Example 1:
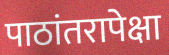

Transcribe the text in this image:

पाठांतरापेक्षा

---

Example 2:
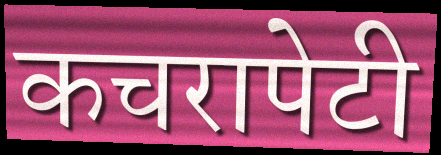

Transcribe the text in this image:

कचरापेटी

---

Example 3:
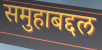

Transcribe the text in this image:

समुहाबद्दल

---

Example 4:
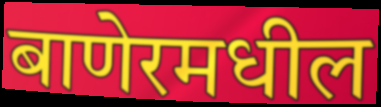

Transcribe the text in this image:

बाणेरमधील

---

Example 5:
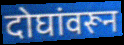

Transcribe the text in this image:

दोघांवरून